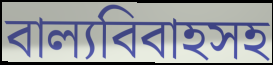
বাল্যবিবাহসহ